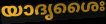
യാദൃശൈഃ